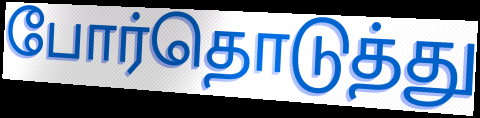
போர்தொடுத்து